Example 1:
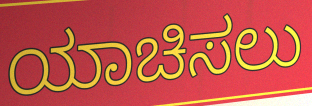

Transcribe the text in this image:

ಯಾಚಿಸಲು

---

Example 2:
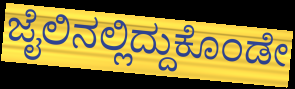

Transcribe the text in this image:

ಜೈಲಿನಲ್ಲಿದ್ದುಕೊಂಡೇ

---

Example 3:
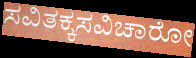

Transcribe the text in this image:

ಸವಿತಕ್ಕಸವಿಚಾರೋ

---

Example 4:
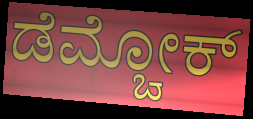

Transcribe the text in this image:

ಡೆಮ್ಚೋಕ್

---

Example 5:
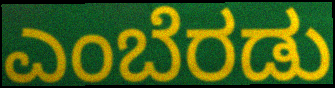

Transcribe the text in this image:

ಎಂಬೆರಡು